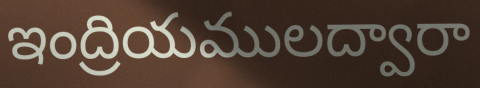
ఇంద్రియములద్వారా